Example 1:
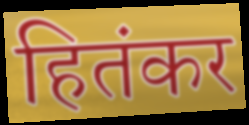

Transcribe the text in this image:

हितंकर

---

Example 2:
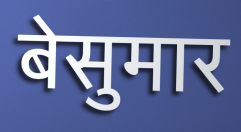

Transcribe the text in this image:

बेसुमार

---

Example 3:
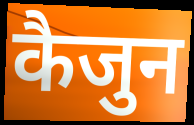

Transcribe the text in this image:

कैजुन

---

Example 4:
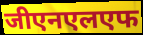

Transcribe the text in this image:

जीएनएलएफ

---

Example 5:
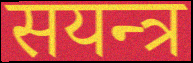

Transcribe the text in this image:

सयन्त्र